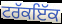
ਟਰੱਕਇੱਕ